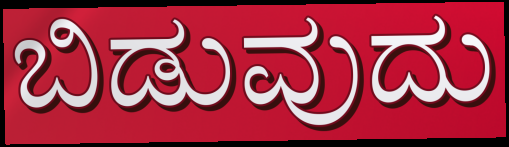
ಬಿಡುವುದು